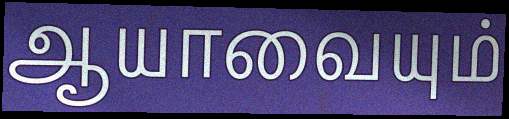
ஆயாவையும்